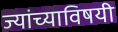
ज्यांच्याविषयी